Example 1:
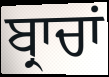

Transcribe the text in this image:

ਬ੍ਰਾਚਾਂ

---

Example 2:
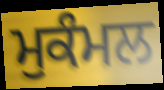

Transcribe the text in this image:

ਮੁਕੰਮਲ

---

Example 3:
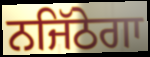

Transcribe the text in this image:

ਨਜਿੱਠੇਗਾ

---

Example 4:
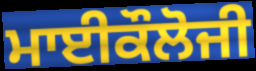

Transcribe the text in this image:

ਮਾਈਕੌਲੋਜੀ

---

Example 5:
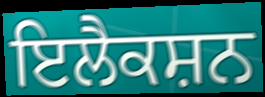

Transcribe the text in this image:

ਇਲੈਕਸ਼ਨ